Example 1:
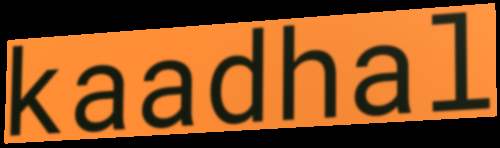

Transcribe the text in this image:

kaadhal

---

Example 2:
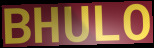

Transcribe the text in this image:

BHULO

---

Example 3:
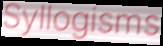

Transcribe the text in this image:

Syllogisms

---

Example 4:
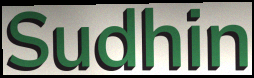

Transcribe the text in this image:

Sudhin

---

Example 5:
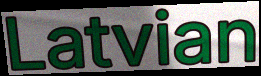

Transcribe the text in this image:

Latvian